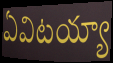
ఏవిటయ్యా